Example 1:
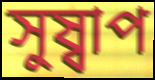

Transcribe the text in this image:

সুষ্বাপ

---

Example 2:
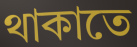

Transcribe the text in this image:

থাকাতে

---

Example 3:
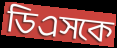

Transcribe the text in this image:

ডিএসকে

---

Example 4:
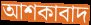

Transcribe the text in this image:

আশকাবাদ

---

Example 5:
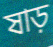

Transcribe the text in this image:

ষাড়